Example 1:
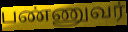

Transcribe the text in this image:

பண்ணுவர்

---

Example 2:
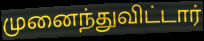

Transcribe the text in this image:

முனைந்துவிட்டார்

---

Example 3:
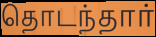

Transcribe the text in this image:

தொடந்தார்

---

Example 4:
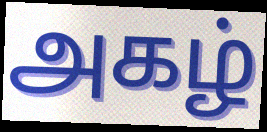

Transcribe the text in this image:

அகழ்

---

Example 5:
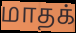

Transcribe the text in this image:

மாதக்